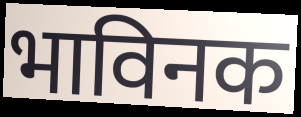
भाविनक